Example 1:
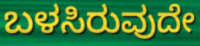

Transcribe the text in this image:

ಬಳಸಿರುವುದೇ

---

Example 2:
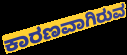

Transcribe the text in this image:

ಕಾರಣವಾಗಿರುವ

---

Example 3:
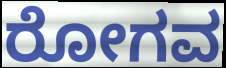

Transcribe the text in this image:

ರೋಗವ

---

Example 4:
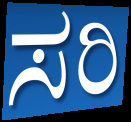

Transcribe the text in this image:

ಸರಿ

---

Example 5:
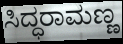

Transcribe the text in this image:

ಸಿದ್ಧರಾಮಣ್ಣ